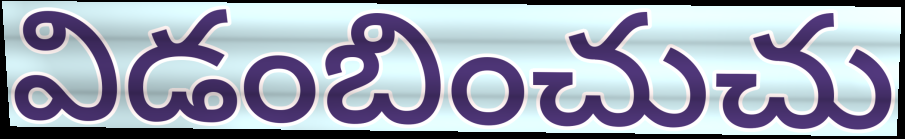
విడంబించుచు